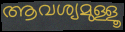
ആവശ്യമുള്ളൂ